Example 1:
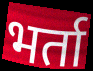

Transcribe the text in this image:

भर्ता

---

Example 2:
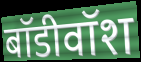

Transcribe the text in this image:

बॉडीवॉश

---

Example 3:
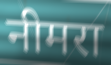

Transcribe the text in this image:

नीमरा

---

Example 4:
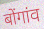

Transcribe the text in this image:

बोंगांव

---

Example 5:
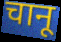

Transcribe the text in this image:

चानू